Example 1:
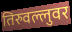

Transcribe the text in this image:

तिरुवल्लुवर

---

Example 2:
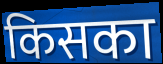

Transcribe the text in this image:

किसका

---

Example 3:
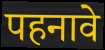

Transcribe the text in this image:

पहनावे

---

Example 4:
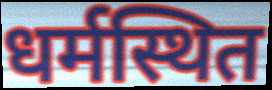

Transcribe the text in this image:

धर्मस्थित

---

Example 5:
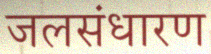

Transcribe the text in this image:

जलसंधारण